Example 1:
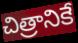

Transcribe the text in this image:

చిత్రానికే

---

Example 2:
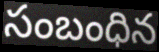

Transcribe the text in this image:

సంబంధిన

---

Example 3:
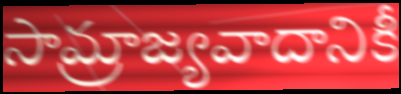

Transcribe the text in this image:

సామ్రాజ్యవాదానికీ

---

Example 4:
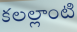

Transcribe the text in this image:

కలల్లాంటి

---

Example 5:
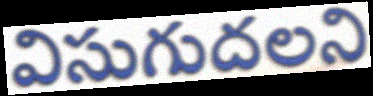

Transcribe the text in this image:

విసుగుదలని